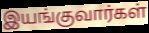
இயங்குவார்கள்